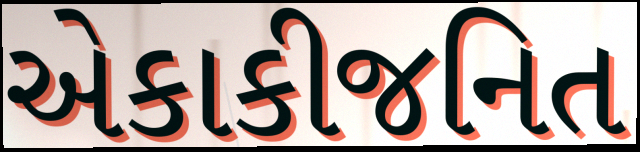
એકાકીજનિત